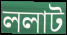
ললাট